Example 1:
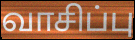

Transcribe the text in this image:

வாசிப்பு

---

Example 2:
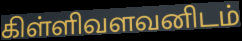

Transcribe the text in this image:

கிள்ளிவளவனிடம்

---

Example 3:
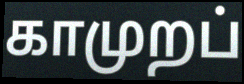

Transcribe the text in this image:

காமுறப்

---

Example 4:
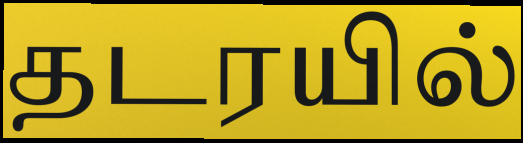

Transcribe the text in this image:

தடரயில்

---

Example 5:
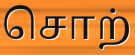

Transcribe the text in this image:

சொற்